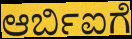
ಆರ್ಬಿಐಗೆ